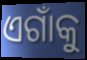
ଏଗାଁକୁ